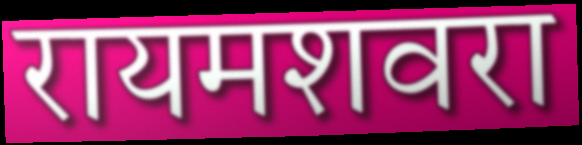
रायमशवरा